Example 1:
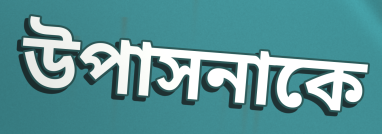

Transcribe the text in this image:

উপাসনাকে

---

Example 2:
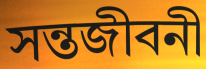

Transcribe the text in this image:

সন্তজীবনী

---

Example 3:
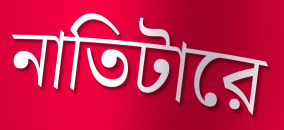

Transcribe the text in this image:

নাতিটারে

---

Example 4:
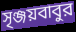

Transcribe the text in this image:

সৃঞ্জয়বাবুর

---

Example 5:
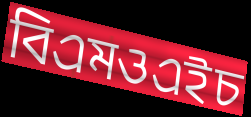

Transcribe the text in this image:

বিএমওএইচ